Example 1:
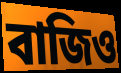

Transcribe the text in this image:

বাজিও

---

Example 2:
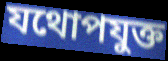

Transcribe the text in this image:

যথোপযুক্ত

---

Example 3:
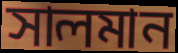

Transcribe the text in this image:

সালমান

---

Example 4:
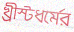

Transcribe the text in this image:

খ্রীস্টধর্মের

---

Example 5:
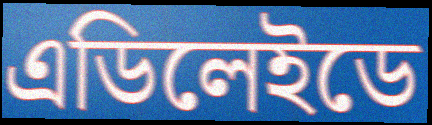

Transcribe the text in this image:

এডিলেইডে